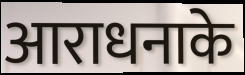
आराधनाके